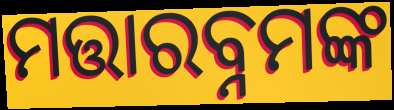
ମତ୍ତାରବ୍ନମଙ୍କ